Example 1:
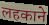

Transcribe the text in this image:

लहकाने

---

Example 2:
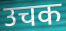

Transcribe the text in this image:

उचक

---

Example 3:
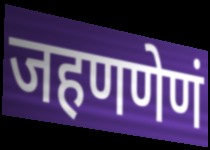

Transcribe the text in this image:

जहणणेणं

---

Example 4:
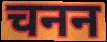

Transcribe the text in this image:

चनन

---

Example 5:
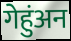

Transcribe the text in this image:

गेहुंअन